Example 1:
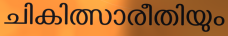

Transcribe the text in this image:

ചികിത്സാരീതിയും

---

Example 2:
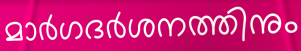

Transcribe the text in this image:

മാർഗദർശനത്തിനും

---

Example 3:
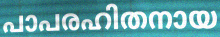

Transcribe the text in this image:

പാപരഹിതനായ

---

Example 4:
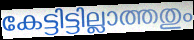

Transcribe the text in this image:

കേട്ടിട്ടില്ലാത്തതും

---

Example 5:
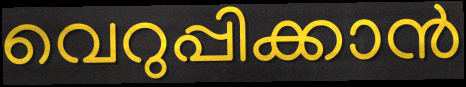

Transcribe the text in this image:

വെറുപ്പിക്കാൻ